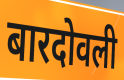
बारदोवली